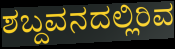
ಶಬ್ದವನದಲ್ಲಿರಿವ